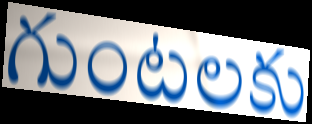
గుంటలకు